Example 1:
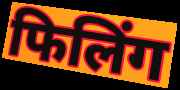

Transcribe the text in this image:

फिलिंग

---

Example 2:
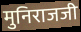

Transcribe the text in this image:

मुनिराजजी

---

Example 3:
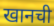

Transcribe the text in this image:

खानची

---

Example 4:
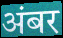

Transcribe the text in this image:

अंबर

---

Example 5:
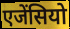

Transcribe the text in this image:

एजेंसियो